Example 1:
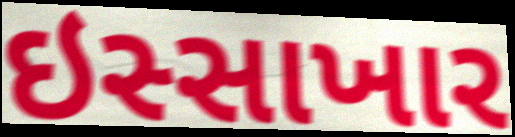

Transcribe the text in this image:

ઇસ્સાખાર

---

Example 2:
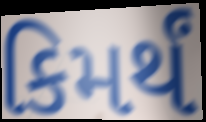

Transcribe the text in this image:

કિમર્થં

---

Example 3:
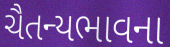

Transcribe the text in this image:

ચૈતન્યભાવના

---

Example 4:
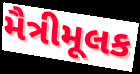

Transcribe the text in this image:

મૈત્રીમૂલક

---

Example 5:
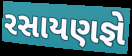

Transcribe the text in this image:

રસાયણજ્ઞે